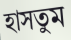
হাসতুম